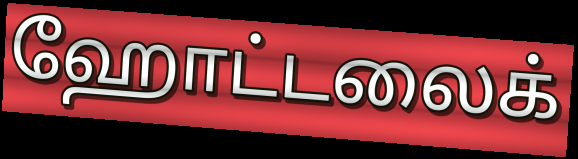
ஹோட்டலைக்